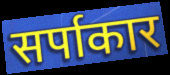
सर्पाकार